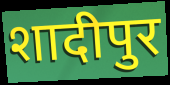
शादीपुर